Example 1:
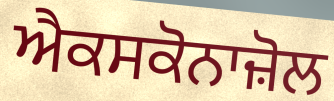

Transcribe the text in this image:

ਐਕਸਕੋਨਾਜ਼ੋਲ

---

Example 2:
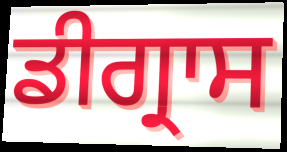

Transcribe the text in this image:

ਡੀਗ੍ਰਾਸ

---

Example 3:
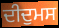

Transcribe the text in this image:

ਦੀਦੁਮਸ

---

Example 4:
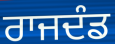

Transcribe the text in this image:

ਰਾਜਦੰਡ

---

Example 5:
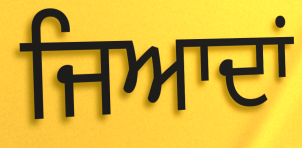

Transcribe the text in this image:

ਜਿਆਦਾਂ